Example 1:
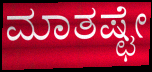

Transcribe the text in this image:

ಮಾತಷ್ಟೇ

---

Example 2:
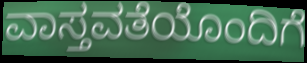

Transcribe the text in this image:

ವಾಸ್ತವತೆಯೊಂದಿಗೆ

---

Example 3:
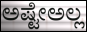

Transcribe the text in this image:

ಅಷ್ಟೇಅಲ್ಲ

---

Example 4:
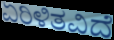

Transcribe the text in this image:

ಏರಿಳಿತವಿದೆ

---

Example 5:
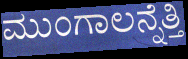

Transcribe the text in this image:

ಮುಂಗಾಲನ್ನೆತ್ತಿ